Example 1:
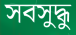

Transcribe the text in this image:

সবসুদ্ধু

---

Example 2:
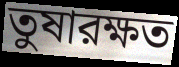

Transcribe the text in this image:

তুষারক্ষত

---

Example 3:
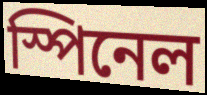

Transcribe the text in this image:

স্পিনেল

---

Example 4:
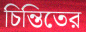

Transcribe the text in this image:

চিন্তিতের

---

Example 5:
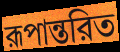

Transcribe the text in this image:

রূপান্তরিত